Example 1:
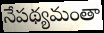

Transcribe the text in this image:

నేపథ్యమంతా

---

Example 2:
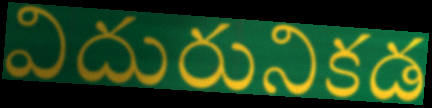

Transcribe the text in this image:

విదురునికడ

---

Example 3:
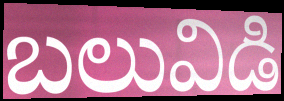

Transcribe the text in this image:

బలువిడి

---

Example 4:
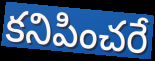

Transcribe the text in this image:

కనిపించరే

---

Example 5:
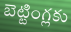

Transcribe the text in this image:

బెట్టింగ్లకు